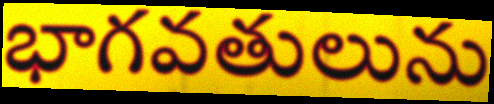
భాగవతులును